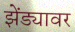
झेंड्यावर